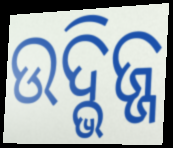
ଉଦ୍ଭିଜ୍ଜ